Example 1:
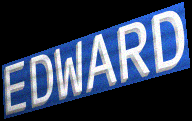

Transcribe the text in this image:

EDWARD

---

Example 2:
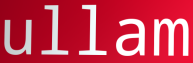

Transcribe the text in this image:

ullam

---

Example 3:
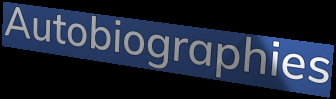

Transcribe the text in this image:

Autobiographies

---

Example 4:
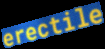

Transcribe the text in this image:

erectile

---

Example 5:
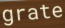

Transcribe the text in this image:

grate